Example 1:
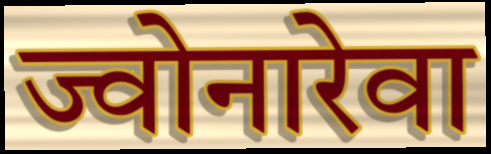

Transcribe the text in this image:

ज्वोनारेवा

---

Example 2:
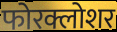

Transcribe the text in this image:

फोरक्लोशर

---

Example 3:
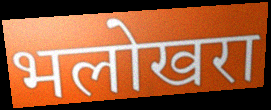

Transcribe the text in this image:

भलोखरा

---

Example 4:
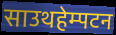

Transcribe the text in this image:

साउथहेम्पटन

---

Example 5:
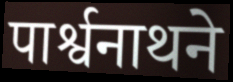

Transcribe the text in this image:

पार्श्वनाथने